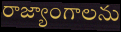
రాజ్యాంగాలను